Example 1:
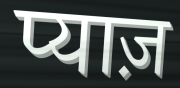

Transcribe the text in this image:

प्याज़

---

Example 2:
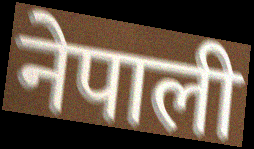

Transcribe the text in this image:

नेपाली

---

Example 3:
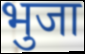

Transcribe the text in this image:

भुजा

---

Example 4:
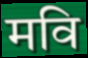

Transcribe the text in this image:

मवि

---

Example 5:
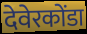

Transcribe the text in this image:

देवेरकोंडा